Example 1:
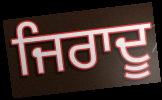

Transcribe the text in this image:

ਜਿਰਾਦੂ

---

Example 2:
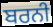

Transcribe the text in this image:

ਬਰਨੀ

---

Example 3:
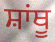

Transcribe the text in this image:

ਸ਼ਾਂਥੂ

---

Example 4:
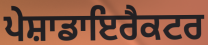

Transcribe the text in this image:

ਪੇਸ਼ਾਡਾਇਰੈਕਟਰ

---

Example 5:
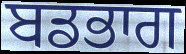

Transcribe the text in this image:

ਬਡਭਾਗ